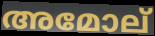
അമോല്